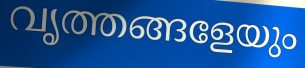
വൃത്തങ്ങളേയും